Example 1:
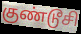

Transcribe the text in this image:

குண்டூசி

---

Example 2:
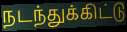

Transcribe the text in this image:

நடந்துக்கிட்டு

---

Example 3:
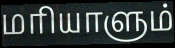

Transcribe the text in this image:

மரியாளும்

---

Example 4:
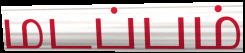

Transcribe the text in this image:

மடப்பம்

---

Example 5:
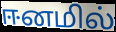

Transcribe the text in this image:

ஈனமில்